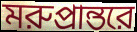
মরুপ্রান্তরে